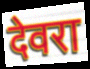
देवरा